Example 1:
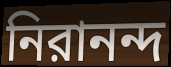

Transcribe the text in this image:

নিরানন্দ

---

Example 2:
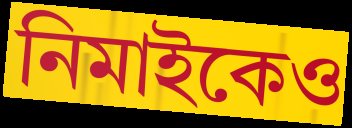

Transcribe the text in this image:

নিমাইকেও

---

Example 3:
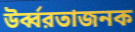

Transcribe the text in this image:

উর্ব্বরতাজনক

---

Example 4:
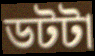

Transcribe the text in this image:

ডটটা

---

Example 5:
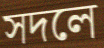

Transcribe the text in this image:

সদলে